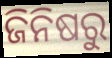
ଜିନିଷରୁ